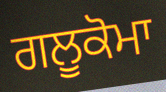
ਗਲੂਕੋਮਾ